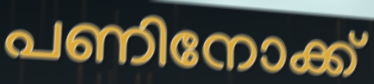
പണിനോക്ക്